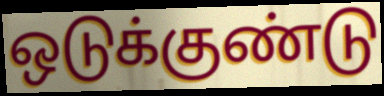
ஒடுக்குண்டு